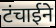
टंचाईने